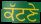
ਕੱਟਣੇ